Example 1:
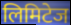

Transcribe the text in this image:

लिमिटेज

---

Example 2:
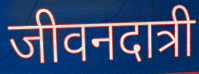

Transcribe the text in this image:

जीवनदात्री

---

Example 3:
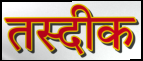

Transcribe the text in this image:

तस्‍दीक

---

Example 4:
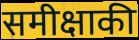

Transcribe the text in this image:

समीक्षाकी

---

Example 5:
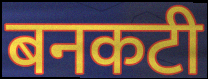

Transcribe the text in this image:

बनकटी